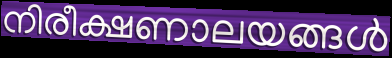
നിരീക്ഷണാലയങ്ങൾ